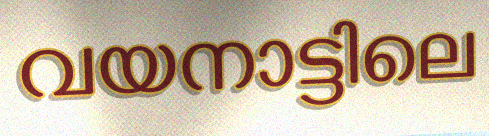
വയനാട്ടിലെ